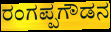
ರಂಗಪ್ಪಗೌಡನ